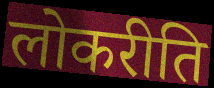
लोकरीति